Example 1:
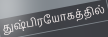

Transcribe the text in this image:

துஷ்பிரயோகத்தில்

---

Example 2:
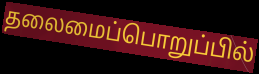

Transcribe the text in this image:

தலைமைப்பொறுப்பில்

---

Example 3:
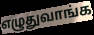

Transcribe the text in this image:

எழுதுவாங்க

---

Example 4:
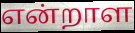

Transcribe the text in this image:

என்றாள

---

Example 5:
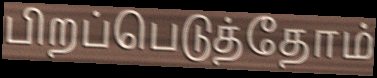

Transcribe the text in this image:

பிறப்பெடுத்தோம்